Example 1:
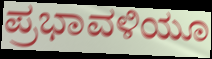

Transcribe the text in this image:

ಪ್ರಭಾವಳಿಯೂ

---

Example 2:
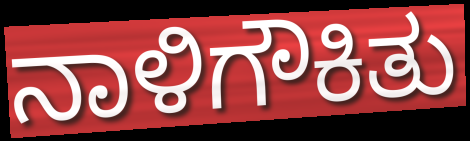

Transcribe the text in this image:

ನಾಳಿಗೌಕಿತು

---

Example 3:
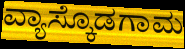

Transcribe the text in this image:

ವ್ಯಾಸ್ಕೊಡಗಾಮ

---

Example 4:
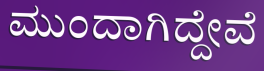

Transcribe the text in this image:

ಮುಂದಾಗಿದ್ದೇವೆ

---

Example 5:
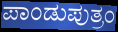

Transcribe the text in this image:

ಪಾಂಡುಪುತ್ರಂ